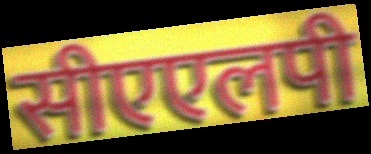
सीएएलपी